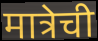
मात्रेची